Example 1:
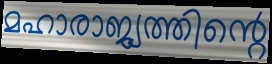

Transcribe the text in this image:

മഹാരാജ്യത്തിന്റെ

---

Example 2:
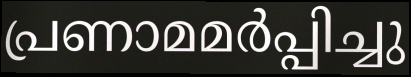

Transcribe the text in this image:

പ്രണാമമർപ്പിച്ചു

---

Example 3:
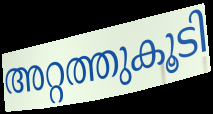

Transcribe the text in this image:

അറ്റത്തുകൂടി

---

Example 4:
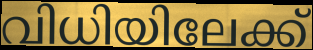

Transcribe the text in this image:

വിധിയിലേക്ക്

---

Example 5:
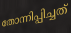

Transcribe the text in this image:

തോന്നിപ്പിച്ചത്